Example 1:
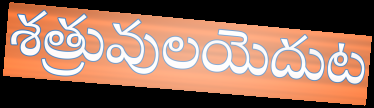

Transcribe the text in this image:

శత్రువులయెదుట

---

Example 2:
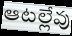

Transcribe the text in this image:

ఆటల్లేవు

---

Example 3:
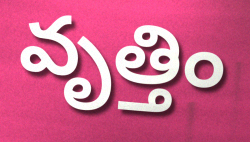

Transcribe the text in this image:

వృత్తిం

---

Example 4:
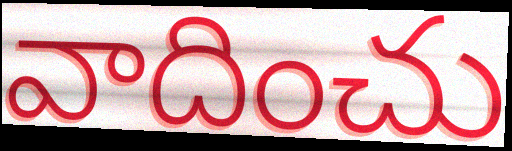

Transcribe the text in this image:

వాదించు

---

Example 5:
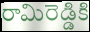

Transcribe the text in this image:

రామిరెడ్డికి